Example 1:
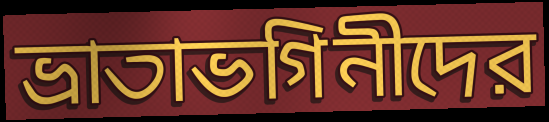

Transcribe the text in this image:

ভ্রাতাভগিনীদের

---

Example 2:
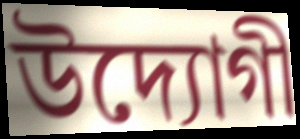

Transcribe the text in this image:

উদ্যোগী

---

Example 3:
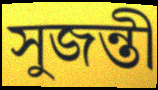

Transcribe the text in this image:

সুজন্তী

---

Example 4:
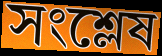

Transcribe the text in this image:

সংশ্লেষ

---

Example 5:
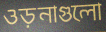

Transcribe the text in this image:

ওড়নাগুলো